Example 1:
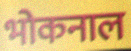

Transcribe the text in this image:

भोकनाल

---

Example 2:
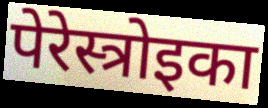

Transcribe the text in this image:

पेरेस्त्रोइका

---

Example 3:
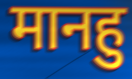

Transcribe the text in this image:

मानहु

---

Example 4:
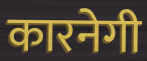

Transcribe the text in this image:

कारनेगी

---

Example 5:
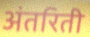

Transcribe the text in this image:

अंतरिती